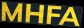
MHFA